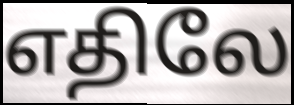
எதிலே